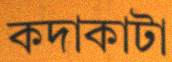
কদাকাটা